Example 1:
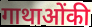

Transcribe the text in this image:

गाथाओंकी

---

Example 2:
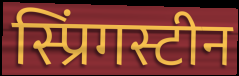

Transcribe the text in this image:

स्प्रिंगस्टीन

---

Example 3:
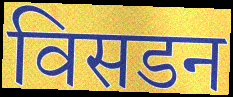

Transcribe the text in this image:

विसडन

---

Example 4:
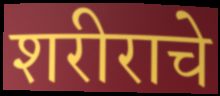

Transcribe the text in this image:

शरीराचे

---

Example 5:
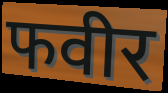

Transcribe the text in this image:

फवीर